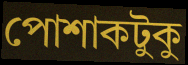
পোশাকটুকু